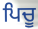
ਪਿਚੂ